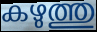
കഴുത്തു